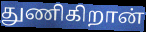
துணிகிறான்